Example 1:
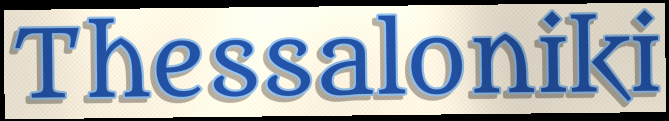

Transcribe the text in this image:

Thessaloniki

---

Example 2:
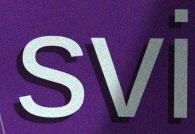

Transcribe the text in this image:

svi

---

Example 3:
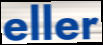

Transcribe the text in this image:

eller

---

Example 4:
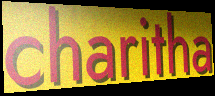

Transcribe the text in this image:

charitha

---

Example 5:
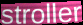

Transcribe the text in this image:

stroller